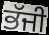
ਭੱਜੀ